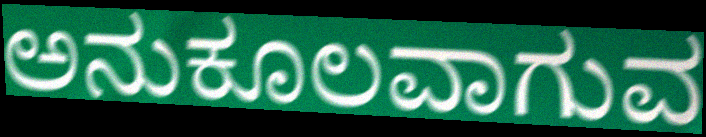
ಅನುಕೂಲವಾಗುವ